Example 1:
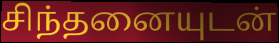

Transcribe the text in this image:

சிந்தனையுடன்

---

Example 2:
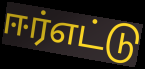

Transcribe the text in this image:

ஈர்எட்டு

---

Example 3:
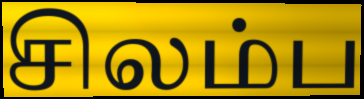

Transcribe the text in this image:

சிலம்ப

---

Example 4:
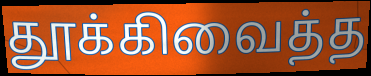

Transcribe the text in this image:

தூக்கிவைத்த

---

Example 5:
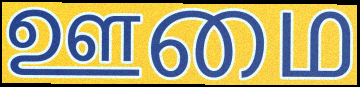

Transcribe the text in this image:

ஊமை